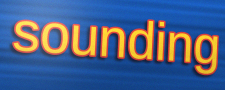
sounding